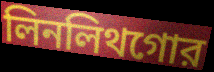
লিনলিথগোর